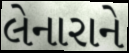
લેનારાને